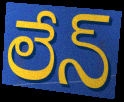
లేన్